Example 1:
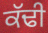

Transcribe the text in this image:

ਕੱਢੀ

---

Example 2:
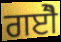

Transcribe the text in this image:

ਗਈੈ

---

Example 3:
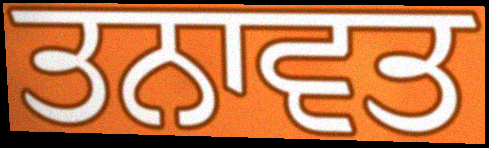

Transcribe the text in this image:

ਤਨਾਵਤ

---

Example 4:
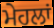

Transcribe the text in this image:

ਮੇਹਲਾਂ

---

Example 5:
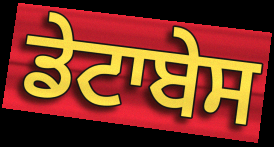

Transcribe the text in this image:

ਡੇਟਾਬੇਸ